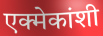
एक्मेकांशी